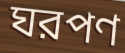
ঘরপণ